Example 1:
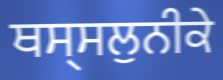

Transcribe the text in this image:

ਥਸ੍ਸਲੁਨੀਕੇ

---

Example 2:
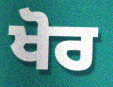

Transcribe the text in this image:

ਖੋਰ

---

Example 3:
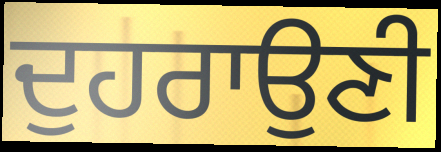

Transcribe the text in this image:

ਦੁਹਰਾਉਣੀ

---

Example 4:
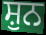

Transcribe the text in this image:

ਸ਼ੁਨ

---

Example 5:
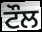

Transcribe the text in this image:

ਟੌਲ